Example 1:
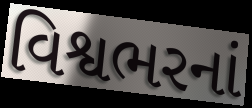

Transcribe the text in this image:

વિશ્વભરનાં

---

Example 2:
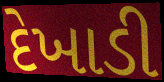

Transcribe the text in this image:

દેખાડી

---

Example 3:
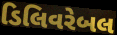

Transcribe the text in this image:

ડિલિવરેબલ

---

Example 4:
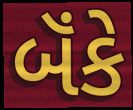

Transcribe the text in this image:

બૅંકે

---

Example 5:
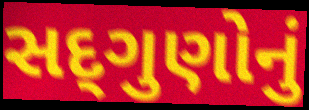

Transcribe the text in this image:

સદ્‌ગુણોનું